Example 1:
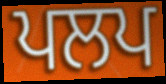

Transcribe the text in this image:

ਪਲਪ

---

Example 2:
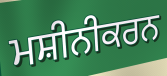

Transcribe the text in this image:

ਮਸ਼ੀਨੀਕਰਨ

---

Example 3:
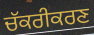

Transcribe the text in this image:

ਚੱਕਰੀਕਰਣ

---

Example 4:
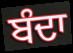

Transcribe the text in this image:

ਬੰਦਾ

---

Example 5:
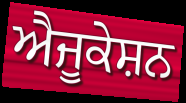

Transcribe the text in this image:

ਐਜੂਕੇਸ਼ਨ